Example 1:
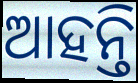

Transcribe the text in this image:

ଆହନ୍ତି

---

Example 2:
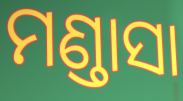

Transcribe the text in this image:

ମଣ୍ଡାସା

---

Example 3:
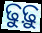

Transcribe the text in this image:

ଢୁଢ଼ୁ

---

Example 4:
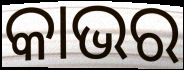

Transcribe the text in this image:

କାଭର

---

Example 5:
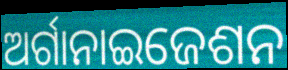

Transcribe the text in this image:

ଅର୍ଗାନାଇଜେଶନ